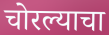
चोरल्याचा